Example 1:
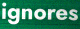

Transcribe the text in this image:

ignores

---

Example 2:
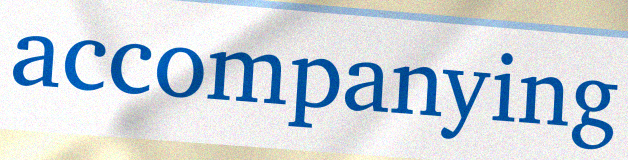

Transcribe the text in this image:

accompanying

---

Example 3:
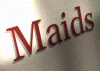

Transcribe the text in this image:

Maids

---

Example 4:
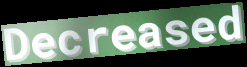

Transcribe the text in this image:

Decreased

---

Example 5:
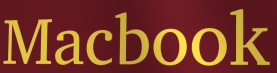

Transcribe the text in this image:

Macbook